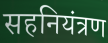
सहनियंत्रण